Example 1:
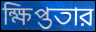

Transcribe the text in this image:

ক্ষিপ্ততার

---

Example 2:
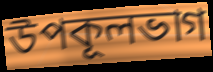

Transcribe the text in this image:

উপকূলভাগ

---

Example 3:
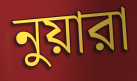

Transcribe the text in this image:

নুয়ারা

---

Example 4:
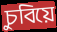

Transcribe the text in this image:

চুবিয়ে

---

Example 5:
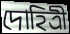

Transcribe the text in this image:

দোহিত্রী